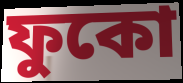
ফুকো